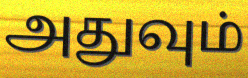
அதுவும்